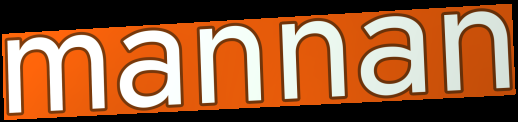
mannan